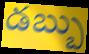
డబ్బు